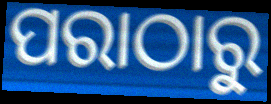
ପରାଠାରୁ